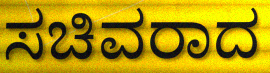
ಸಚಿವರಾದ